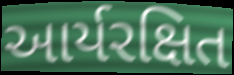
આર્યરક્ષિત